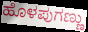
ಹೊಳಪುಗಣ್ಣು